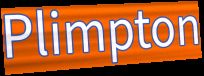
Plimpton